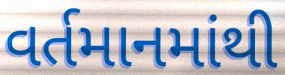
વર્તમાનમાંથી